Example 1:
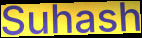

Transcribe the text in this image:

Suhash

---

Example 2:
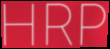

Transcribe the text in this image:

HRP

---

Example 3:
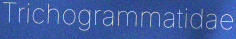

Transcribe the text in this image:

Trichogrammatidae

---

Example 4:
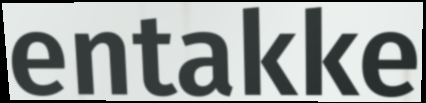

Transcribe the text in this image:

entakke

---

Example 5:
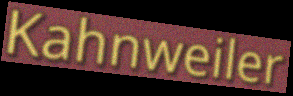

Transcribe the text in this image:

Kahnweiler